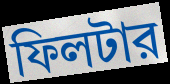
ফিলটার